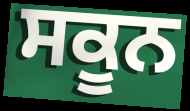
ਸਕੂਨ